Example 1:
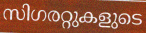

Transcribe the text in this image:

സിഗരറ്റുകളുടെ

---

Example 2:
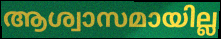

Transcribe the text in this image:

ആശ്വാസമായില്ല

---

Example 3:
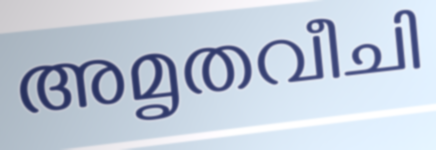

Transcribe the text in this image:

അമൃതവീചി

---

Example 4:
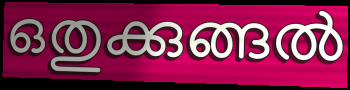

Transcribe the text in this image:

ഒതുക്കുങ്ങൽ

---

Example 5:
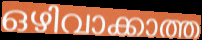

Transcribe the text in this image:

ഒഴിവാക്കാത്ത